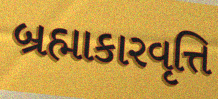
બ્રહ્માકારવૃત્તિ